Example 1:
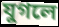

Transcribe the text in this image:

যুগলে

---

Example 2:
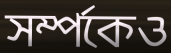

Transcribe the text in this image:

সৰ্ম্পকেও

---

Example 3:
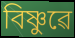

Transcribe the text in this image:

বিষ্ণুৱে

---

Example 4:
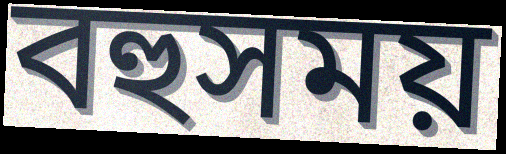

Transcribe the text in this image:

বহুসময়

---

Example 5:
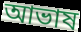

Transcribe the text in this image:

আভাষ